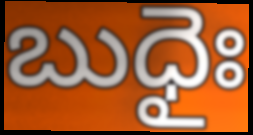
బుధైః